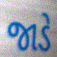
જાડે